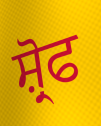
ਸ਼੍ਰੋਫ